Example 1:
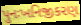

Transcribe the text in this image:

પુનઃખનિજીકરણ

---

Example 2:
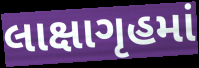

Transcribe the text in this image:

લાક્ષાગૃહમાં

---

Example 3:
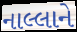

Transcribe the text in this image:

નાલ્લાને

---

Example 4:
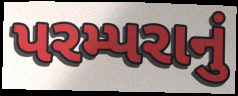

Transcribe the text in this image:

પરમ્પરાનું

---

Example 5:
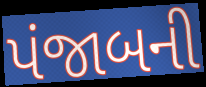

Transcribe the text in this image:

પંજાબની